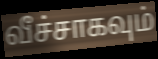
வீச்சாகவும்